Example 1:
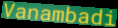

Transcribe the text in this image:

Vanambadi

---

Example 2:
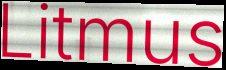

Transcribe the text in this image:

Litmus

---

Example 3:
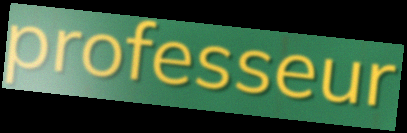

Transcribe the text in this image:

professeur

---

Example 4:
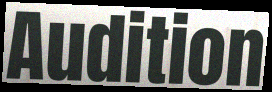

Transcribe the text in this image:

Audition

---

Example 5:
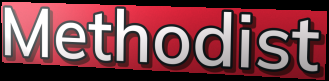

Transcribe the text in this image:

Methodist